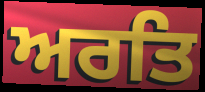
ਅਰਤਿ